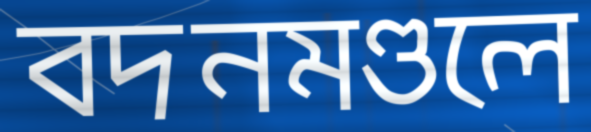
বদনমণ্ডলে